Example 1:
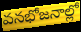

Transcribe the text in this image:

వనభోజనాల్లో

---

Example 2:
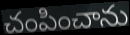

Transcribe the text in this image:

చంపించాను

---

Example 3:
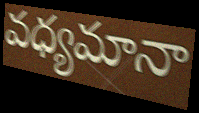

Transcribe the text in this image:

వధ్యమానా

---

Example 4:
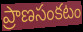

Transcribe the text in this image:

ప్రాణసంకటం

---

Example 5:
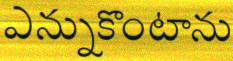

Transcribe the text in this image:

ఎన్నుకొంటాను